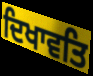
ਦਿਖਾਵਤਿ